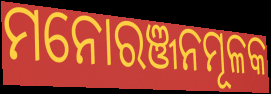
ମନୋରଞ୍ଜନମୂଳକ